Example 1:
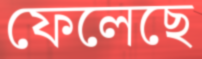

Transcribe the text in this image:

ফেলেছে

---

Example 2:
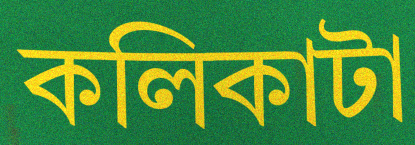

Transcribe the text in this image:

কলিকাটা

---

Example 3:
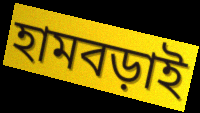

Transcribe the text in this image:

হামবড়াই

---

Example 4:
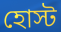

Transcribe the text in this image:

হোস্ট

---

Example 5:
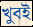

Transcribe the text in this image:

খুবই